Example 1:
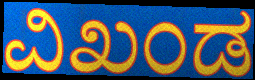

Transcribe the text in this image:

ವಿಖಂಡ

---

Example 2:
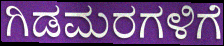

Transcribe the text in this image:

ಗಿಡಮರಗಳಿಗೆ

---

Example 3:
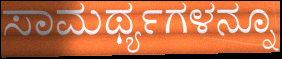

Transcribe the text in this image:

ಸಾಮರ್ಥ್ಯಗಳನ್ನೂ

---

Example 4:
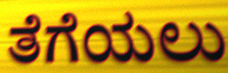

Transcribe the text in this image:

ತೆಗೆಯಲು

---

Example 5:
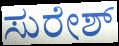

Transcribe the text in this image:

ಸುರೇಶ್